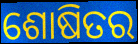
ଶୋଷିତର